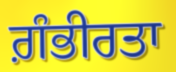
ਗ਼ੰਭੀਰਤਾ